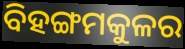
ବିହଙ୍ଗମକୁଳର